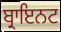
ਬ੍ਰਾਇਨਟ